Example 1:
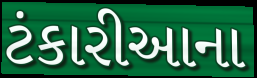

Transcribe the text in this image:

ટંકારીઆના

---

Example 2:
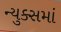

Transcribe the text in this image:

ન્યુક્સમાં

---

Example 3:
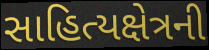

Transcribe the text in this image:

સાહિત્યક્ષેત્રની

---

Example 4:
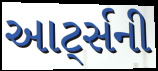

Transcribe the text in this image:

આર્ટ્સની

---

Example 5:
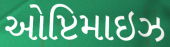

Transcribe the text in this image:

ઓપ્ટિમાઇઝ